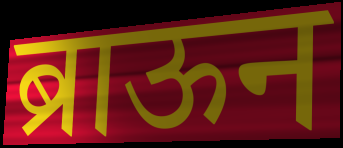
ब्राऊन